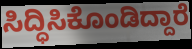
ಸಿದ್ಧಿಸಿಕೊಂಡಿದ್ದಾರೆ